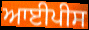
ਆਈਪੀਸ